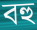
বহু